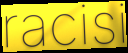
racisi